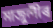
মাজুলীৰ